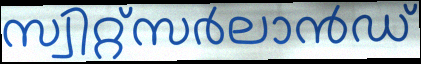
സ്വിറ്റ്സർലാൻഡ്